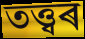
তত্ত্বৰ